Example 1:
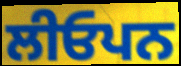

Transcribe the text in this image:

ਲੀਓਪਨ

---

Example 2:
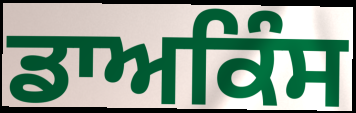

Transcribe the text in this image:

ਡਾਅਕਿੰਸ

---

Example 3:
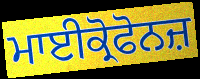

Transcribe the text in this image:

ਮਾਈਕ੍ਰੋਫੋਨਜ਼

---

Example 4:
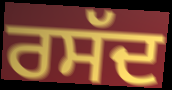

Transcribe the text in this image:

ਰਸੱਦ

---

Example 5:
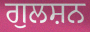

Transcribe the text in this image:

ਗੁਲਸ਼ਨ